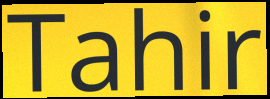
Tahir